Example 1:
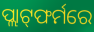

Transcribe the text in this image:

ପ୍ଲାଟ୍‌ଫର୍ମରେ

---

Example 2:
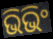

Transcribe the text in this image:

ଭିଭିଂ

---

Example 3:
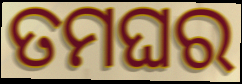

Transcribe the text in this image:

ତମଘର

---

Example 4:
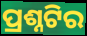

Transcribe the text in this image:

ପ୍ରଶ୍ନଟିର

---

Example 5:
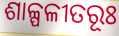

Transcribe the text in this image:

ଶାଳ୍ପଳୀତରୂଃ